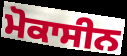
ਮੋਕਾਸੀਨ